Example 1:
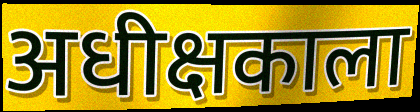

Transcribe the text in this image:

अधीक्षकाला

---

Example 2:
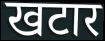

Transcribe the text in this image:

खटार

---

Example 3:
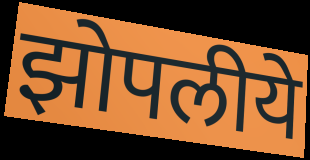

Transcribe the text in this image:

झोपलीये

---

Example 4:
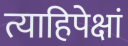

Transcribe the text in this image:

त्याहिपेक्षां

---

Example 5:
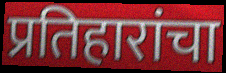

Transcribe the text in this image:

प्रतिहारांचा